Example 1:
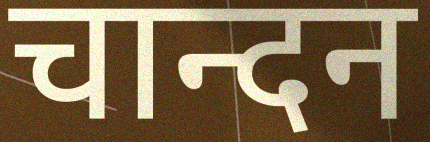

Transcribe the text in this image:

चान्दन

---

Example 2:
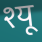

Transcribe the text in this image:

श्यू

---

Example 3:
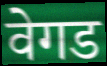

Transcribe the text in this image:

वेगड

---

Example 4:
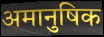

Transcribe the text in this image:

अमानुषिक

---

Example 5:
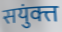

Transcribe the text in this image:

सयुंक्त